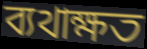
ব্যথাক্ষত